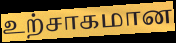
உற்சாகமான